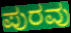
ಪುರವು